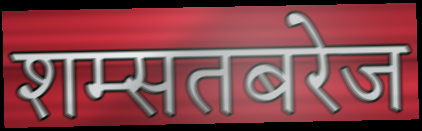
शम्सतबरेज